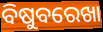
ବିଷୁବରେଖା